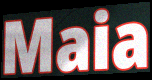
Maia